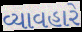
વ્યાવહારે